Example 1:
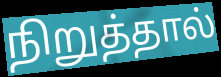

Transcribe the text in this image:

நிறுத்தால்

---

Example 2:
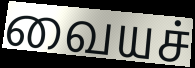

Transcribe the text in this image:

வையச்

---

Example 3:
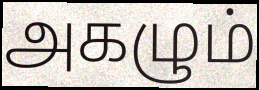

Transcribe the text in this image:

அகழும்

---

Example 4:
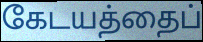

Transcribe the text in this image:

கேடயத்தைப்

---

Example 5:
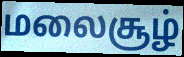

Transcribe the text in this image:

மலைசூழ்